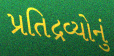
પ્રતિદ્રવ્યોનું